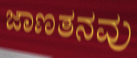
ಜಾಣತನವು